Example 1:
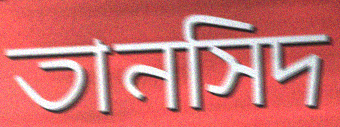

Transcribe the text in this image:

তানসিদ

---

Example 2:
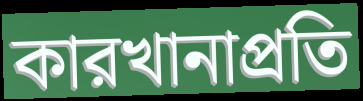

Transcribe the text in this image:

কারখানাপ্রতি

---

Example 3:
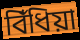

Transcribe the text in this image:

বিঁধিয়া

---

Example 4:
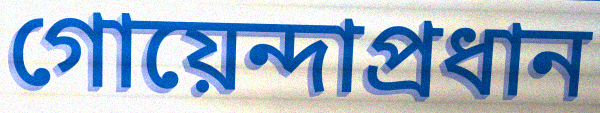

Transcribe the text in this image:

গোয়েন্দাপ্রধান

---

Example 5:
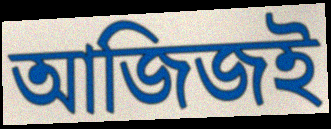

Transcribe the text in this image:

আজিজই